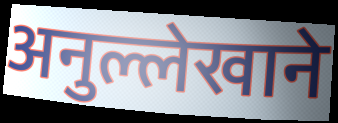
अनुल्लेखाने